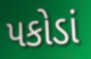
પકોડાં